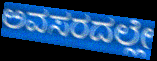
ಅವಸರದಲ್ಲೇ